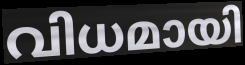
വിധമായി